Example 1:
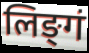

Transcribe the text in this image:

लिङ्गं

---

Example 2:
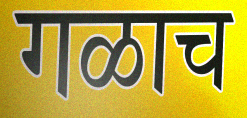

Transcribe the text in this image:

गळाच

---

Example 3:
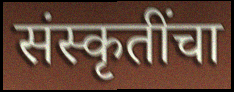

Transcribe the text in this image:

संस्कृतींचा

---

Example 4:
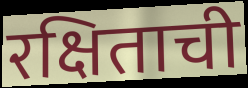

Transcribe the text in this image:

रक्षिताची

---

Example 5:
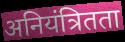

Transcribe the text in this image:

अनियंत्रितता